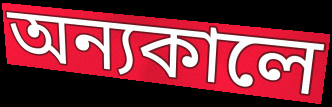
অন্যকালে